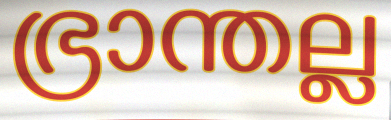
ഭ്രാന്തല്ല